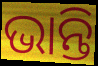
ଭାନ୍ତି